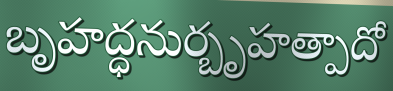
బృహద్ధనుర్బృహత్పాదో